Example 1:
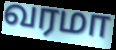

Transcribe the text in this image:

வரமா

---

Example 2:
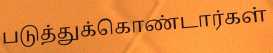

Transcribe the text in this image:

படுத்துக்கொண்டார்கள்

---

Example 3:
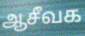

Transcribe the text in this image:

ஆசீவக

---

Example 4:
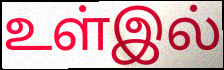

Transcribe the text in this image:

உள்இல்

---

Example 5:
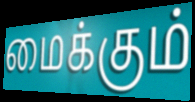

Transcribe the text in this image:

மைக்கும்